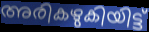
അരികഴുകിയിട്ട്